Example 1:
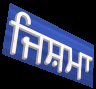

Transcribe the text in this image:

ਜਿਸ਼ਮਾ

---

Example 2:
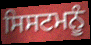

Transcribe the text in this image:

ਸਿਸਟਮਨੂੰ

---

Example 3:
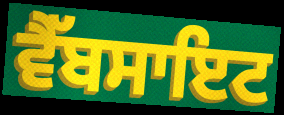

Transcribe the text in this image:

ਵੈੱਬਸਾਇਟ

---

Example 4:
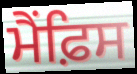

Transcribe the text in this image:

ਮੈਂਫ਼ਿਸ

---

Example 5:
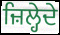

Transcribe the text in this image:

ਜ਼ਿਲ੍ਹੇਦੇ